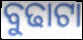
ବୁଢାଟା